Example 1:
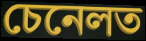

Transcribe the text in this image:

চেনেলত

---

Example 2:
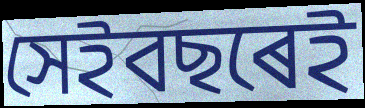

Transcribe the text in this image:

সেইবছৰেই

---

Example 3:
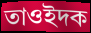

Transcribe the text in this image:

তাওইদক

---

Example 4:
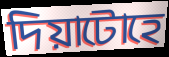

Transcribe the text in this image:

দিয়াটোহে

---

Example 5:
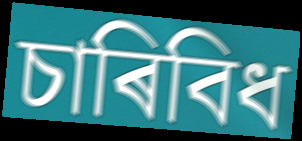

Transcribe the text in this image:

চাৰিবিধ